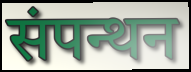
संपन्थन